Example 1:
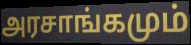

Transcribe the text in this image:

அரசாங்கமும்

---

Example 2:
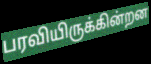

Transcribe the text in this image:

பரவியிருக்கின்றன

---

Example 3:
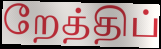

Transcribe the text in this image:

றேத்திப்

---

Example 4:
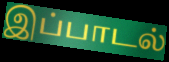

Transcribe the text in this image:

இப்பாடல்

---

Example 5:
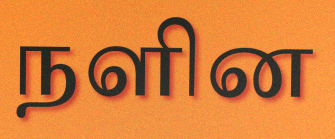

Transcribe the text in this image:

நளின